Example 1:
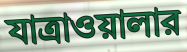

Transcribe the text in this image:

যাত্রাওয়ালার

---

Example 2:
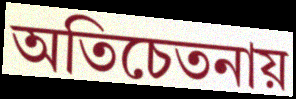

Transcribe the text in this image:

অতিচেতনায়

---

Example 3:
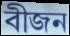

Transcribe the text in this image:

বীজন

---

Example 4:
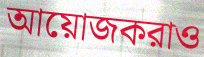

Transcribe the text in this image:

আয়োজকরাও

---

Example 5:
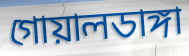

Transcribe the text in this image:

গোয়ালডাঙ্গা